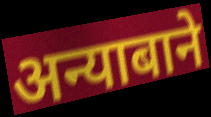
अन्याबाने